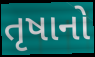
તૃષાનો